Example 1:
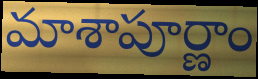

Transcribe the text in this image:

మాశాపూర్ణాం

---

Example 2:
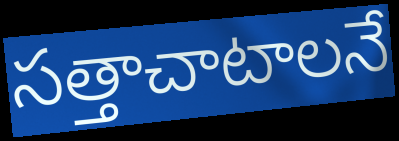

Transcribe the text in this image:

సత్తాచాటాలనే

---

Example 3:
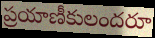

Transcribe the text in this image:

ప్రయాణీకులందరూ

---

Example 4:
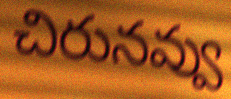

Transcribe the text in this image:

చిరునవ్వు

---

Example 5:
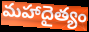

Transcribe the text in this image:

మహాదైత్యం